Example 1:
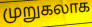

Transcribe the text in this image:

முறுகலாக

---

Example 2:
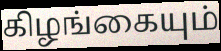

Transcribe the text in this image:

கிழங்கையும்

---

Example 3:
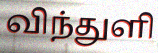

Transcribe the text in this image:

விந்துளி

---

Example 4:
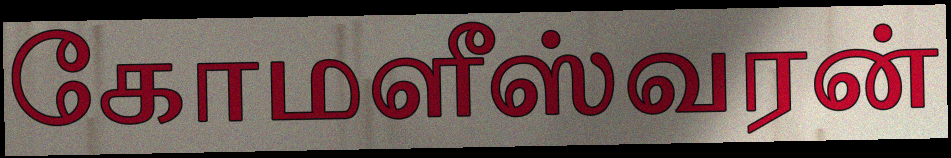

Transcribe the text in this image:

கோமளீஸ்வரன்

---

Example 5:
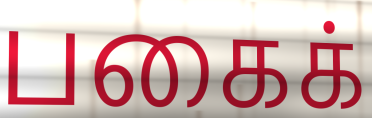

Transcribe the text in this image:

பகைக்